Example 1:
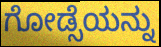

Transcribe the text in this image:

ಗೋಡ್ಸೆಯನ್ನು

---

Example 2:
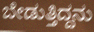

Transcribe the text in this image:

ಬೇಡುತ್ತಿದ್ದನು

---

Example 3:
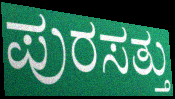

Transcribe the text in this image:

ಪುರಸತ್ತು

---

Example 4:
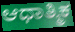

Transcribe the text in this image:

ಆಧಾತ್ಮಿಕ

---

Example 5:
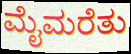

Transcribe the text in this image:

ಮೈಮರೆತು